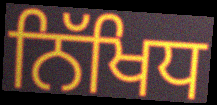
ਨਿੱਖਿਧ